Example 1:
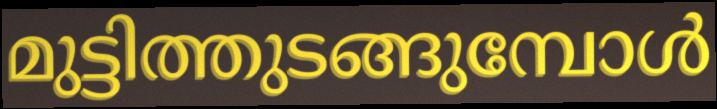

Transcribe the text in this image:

മുട്ടിത്തുടങ്ങുമ്പോൾ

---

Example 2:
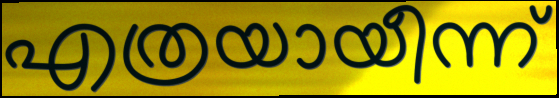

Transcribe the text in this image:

എത്രയായീന്ന്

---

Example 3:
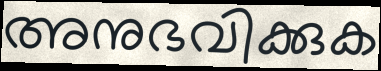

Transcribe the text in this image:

അനുഭവിക്കുക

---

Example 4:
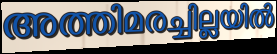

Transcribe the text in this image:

അത്തിമരച്ചില്ലയിൽ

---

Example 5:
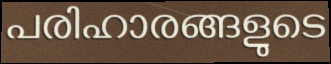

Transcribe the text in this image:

പരിഹാരങ്ങളുടെ